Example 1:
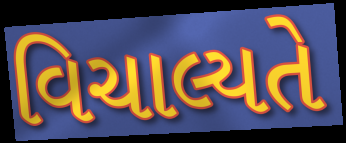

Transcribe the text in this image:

વિચાલ્યતે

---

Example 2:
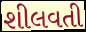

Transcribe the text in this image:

શીલવતી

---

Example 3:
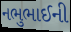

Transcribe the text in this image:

નભુભાઈની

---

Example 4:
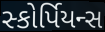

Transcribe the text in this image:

સ્કોર્પિયન્સ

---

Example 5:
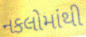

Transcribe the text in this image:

નકલોમાંથી